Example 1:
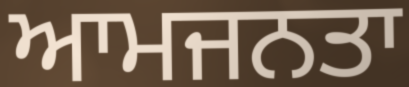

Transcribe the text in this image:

ਆਮਜਨਤਾ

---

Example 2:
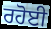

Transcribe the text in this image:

ਰਹੋਈ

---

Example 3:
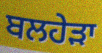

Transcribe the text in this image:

ਬਲਹੇੜਾ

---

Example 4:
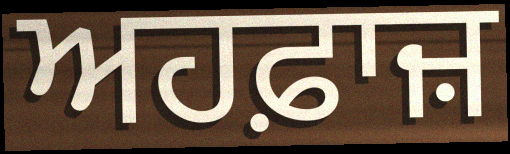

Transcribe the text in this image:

ਅਹਫ਼ਾਜ਼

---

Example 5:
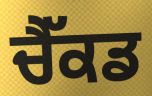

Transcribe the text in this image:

ਚੈੱਕਡ